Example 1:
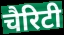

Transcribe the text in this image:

चैरिटी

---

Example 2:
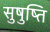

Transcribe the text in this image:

सुषुष्ति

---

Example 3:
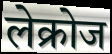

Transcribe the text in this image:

लेक्रोज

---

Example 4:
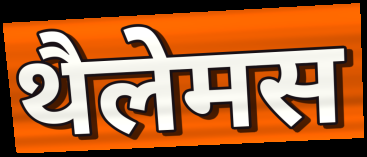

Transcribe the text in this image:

थैलेमस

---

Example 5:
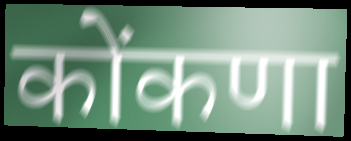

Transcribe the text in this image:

कोंकणा